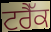
ਟਰੈੱਕ